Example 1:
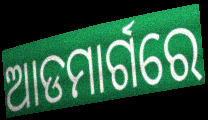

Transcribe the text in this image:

ଆଡମାର୍ଗରେ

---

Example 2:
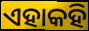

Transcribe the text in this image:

ଏହାକହି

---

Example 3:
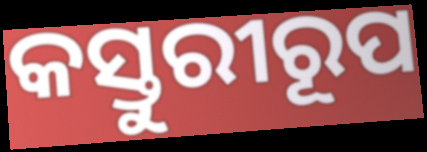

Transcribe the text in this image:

କସ୍ତୁରୀରୂପ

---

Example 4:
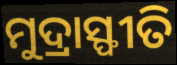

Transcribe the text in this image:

ମୁଦ୍ରାସ୍ଫୀତି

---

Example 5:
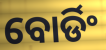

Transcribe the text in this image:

ବୋର୍ଡିଂ